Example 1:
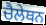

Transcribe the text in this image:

ਚੈਲੇਥਨ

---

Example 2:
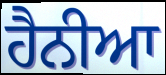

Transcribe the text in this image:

ਹੈਨੀਆ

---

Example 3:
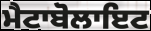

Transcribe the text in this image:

ਮੈਟਾਬੋਲਾਇਟ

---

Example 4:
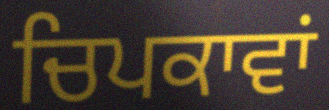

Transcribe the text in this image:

ਚਿਪਕਾਵਾਂ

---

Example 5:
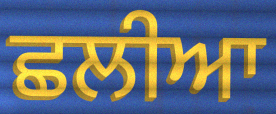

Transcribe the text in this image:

ਛਲੀਆ